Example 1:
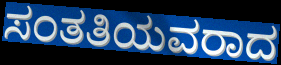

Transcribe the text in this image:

ಸಂತತಿಯವರಾದ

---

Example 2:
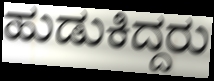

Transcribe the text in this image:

ಹುಡುಕಿದ್ದರು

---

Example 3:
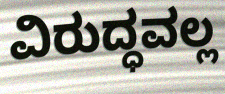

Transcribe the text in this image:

ವಿರುದ್ಧವಲ್ಲ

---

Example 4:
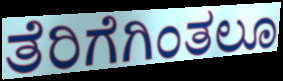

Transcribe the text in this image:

ತೆರಿಗೆಗಿಂತಲೂ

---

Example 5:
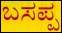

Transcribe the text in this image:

ಬಸಪ್ಪ